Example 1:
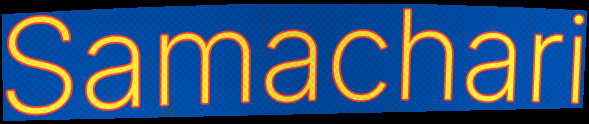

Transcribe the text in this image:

Samachari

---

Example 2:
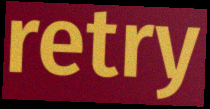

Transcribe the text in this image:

retry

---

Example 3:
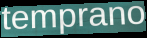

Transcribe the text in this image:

temprano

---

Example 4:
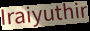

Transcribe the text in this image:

Iraiyuthir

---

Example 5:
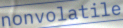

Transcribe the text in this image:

nonvolatile